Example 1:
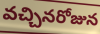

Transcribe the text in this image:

వచ్చినరోజున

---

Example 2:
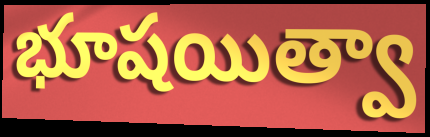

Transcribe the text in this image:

భూషయిత్వా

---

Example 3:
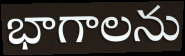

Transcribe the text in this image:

భాగాలను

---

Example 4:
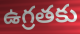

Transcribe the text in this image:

ఉగ్రతకు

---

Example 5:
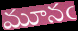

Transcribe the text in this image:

మూనఁ